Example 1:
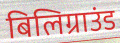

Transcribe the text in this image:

बिलिग्राउंड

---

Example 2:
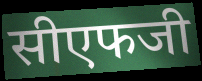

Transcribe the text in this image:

सीएफजी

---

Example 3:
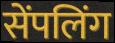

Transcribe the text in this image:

सेंपलिंग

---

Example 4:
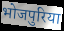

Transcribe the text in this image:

भोजपुरिया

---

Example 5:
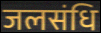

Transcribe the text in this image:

जलसंधि